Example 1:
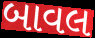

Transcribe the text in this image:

બાવલ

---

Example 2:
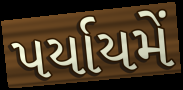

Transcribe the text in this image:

પર્યાયમેં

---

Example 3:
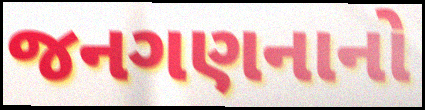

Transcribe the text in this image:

જનગણનાનો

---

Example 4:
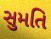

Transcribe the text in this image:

સુમતિ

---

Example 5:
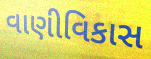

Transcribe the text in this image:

વાણીવિકાસ